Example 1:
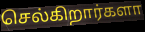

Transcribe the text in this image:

செல்கிறார்களா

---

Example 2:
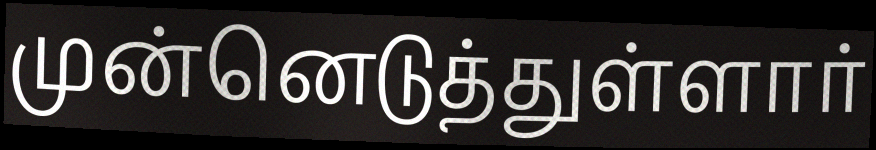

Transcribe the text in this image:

முன்னெடுத்துள்ளார்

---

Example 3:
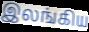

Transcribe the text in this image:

இலங்கிய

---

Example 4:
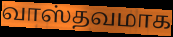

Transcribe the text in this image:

வாஸ்தவமாக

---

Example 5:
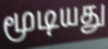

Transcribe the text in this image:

மூடியது